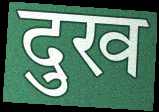
दुख